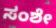
ಸಂಶೇ